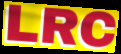
LRC